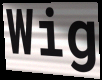
Wig